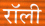
रॉली